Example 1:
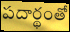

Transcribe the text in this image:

పదార్థంతో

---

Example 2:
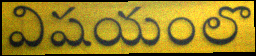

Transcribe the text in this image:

విషయంలొ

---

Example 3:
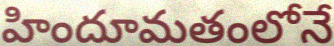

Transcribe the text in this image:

హిందూమతంలోనే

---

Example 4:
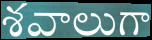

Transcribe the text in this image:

శవాలుగా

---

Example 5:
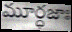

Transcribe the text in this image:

మూర్ధజాః